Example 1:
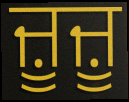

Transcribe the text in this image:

ਜ਼ੂਜ਼ੂ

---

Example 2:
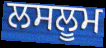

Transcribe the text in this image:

ਲਸਲੂਮ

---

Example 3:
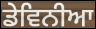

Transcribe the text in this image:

ਡੇਵਿਨੀਆ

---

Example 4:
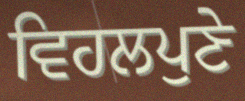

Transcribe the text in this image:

ਵਿਹਲਪੁਣੇ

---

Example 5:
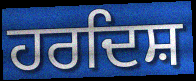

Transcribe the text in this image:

ਹਰਦਿਸ਼